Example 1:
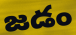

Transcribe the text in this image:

జడం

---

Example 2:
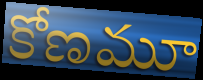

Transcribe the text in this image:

కోణమూ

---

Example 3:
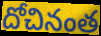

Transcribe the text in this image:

దోచినంత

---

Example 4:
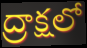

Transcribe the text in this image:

ద్రాక్షలో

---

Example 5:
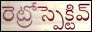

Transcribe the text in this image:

రెట్రోస్పెక్టివ్